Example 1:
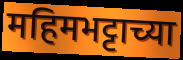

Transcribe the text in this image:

महिमभट्टाच्या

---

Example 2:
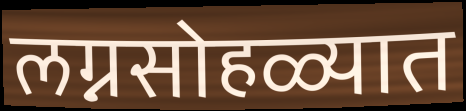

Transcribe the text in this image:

लग्नसोहळ्यात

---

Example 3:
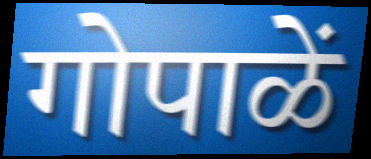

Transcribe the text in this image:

गोपाळें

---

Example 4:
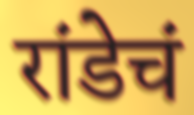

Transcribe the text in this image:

रांडेचं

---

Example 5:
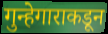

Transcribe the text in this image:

गुन्हेगाराकडून